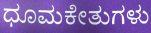
ಧೂಮಕೇತುಗಳು